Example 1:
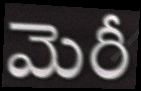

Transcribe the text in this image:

మెరీ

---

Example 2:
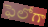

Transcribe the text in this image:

ఫెలోగా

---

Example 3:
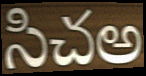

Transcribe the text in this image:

సిచఅ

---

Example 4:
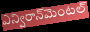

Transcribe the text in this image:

ఎన్విరాన్‌మెంటల్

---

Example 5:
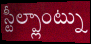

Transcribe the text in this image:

స్టీల్ప్లాంట్ను